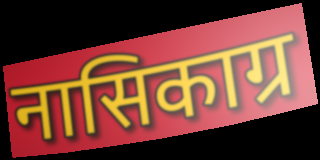
नासिकाग्र